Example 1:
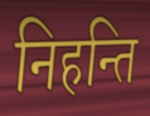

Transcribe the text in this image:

निहन्ति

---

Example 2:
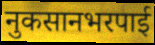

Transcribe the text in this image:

नुकसानभरपाई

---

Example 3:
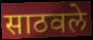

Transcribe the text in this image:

साठवले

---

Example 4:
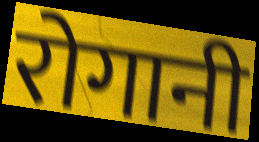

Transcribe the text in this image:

रोगानी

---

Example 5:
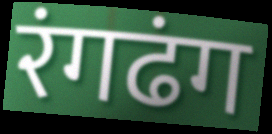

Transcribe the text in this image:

रंगढंग